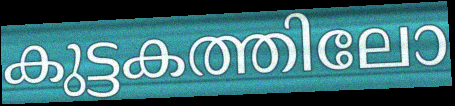
കുട്ടകത്തിലോ